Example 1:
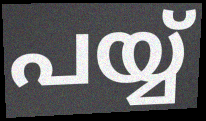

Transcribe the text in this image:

പയ്യ്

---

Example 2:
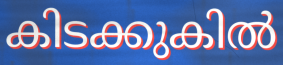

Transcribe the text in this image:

കിടക്കുകിൽ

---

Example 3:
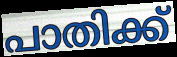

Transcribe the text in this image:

പാതിക്ക്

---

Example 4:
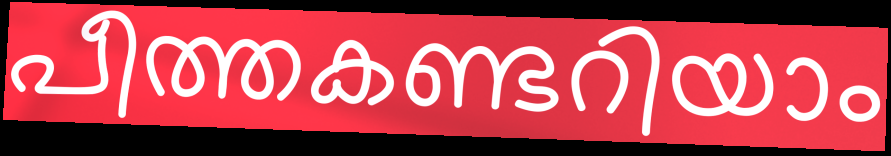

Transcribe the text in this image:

പീത്തകണ്ടറിയാം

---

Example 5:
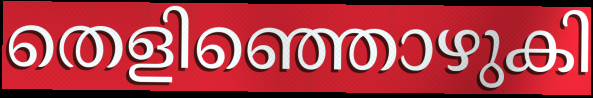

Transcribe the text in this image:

തെളിഞ്ഞൊഴുകി